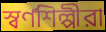
স্বর্ণশিল্পীরা